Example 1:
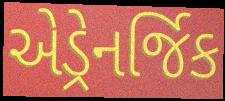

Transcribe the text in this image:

એડ્રેનર્જિક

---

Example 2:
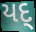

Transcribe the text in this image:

યદ્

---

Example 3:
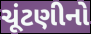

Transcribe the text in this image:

ચૂંટણીનો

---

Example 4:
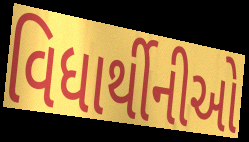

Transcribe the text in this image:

વિધાર્થીનીઓ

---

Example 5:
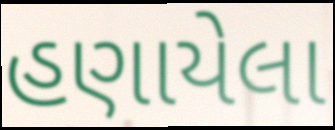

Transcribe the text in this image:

હણાયેલા